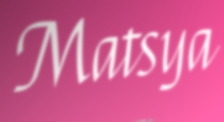
Matsya